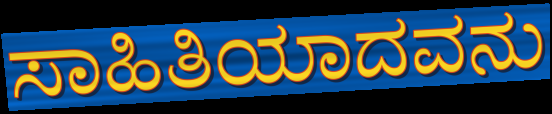
ಸಾಹಿತಿಯಾದವನು